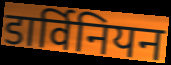
डार्विनियन